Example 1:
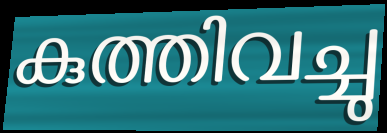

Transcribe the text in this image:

കുത്തിവച്ചു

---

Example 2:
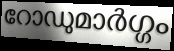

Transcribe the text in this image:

റോഡുമാർഗ്ഗം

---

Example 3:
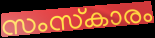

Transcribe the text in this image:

സംസ്‌കാരം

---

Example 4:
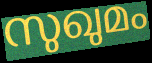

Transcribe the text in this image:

സുഖുമം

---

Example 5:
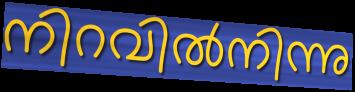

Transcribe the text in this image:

നിറവിൽനിന്നു